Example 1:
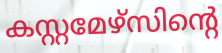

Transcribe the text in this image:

കസ്റ്റമേഴ്സിന്റെ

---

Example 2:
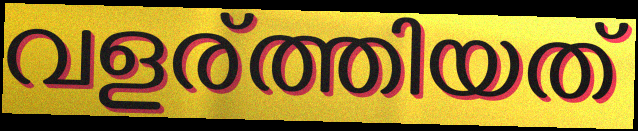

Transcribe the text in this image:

വളര്ത്തിയത്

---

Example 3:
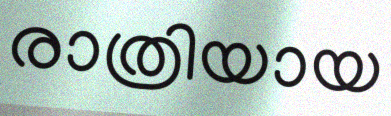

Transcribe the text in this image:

രാത്രിയായ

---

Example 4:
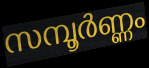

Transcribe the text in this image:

സമ്പൂർണ്ണം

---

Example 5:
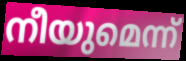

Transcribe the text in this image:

നീയുമെന്ന്